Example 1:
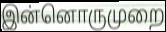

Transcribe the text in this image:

இன்னொருமுறை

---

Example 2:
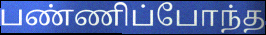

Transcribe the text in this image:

பண்ணிப்போந்த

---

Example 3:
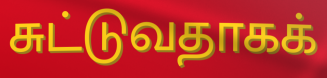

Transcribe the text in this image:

சுட்டுவதாகக்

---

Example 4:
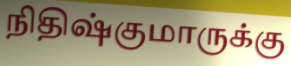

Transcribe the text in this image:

நிதிஷ்குமாருக்கு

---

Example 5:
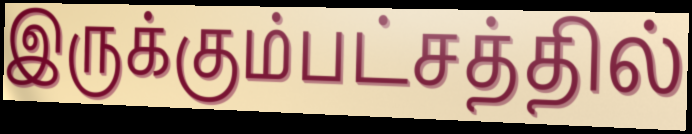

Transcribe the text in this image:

இருக்கும்பட்சத்தில்